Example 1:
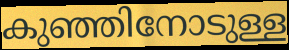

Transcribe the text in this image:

കുഞ്ഞിനോടുള്ള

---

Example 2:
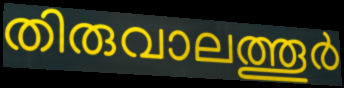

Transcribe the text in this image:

തിരുവാലത്തൂർ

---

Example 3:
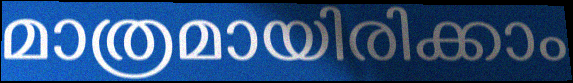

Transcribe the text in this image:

മാത്രമായിരിക്കാം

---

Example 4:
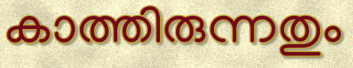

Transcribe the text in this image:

കാത്തിരുന്നതും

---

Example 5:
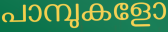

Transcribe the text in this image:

പാമ്പുകളോ